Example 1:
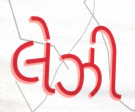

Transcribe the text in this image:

લેઝી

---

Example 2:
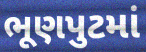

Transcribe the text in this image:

ભૂણપુટમાં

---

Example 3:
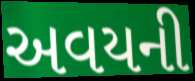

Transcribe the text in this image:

અવયની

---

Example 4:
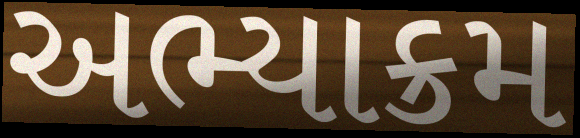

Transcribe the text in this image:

અભ્યાક્રમ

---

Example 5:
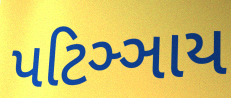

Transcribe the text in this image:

પટિઞ્ઞાય